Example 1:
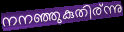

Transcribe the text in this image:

നനഞ്ഞുകുതിര്ന്നു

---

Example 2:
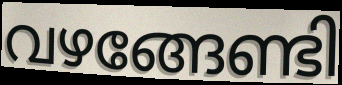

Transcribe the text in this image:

വഴങ്ങേണ്ടി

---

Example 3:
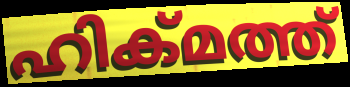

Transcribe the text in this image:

ഹിക്മത്ത്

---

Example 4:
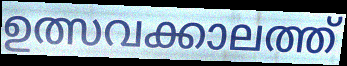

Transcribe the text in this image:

ഉത്സവക്കാലത്ത്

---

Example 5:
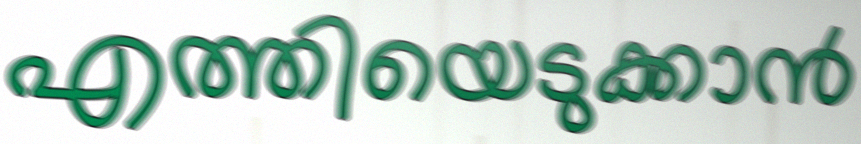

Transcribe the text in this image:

എത്തിയെടുക്കാൻ